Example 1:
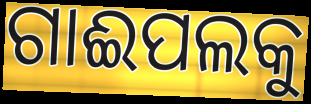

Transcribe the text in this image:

ଗାଈପଲକୁ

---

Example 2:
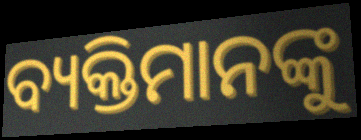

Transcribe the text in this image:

ବ୍ୟକ୍ତିମାନଙ୍କୁ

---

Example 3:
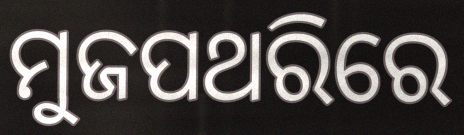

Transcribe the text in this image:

ମୁଜପଥରିରେ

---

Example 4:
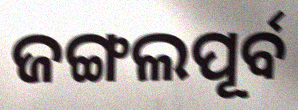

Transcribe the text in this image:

ଜଙ୍ଗଲପୂର୍ବ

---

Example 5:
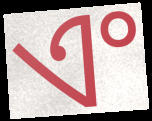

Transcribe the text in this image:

ଏଂ